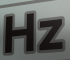
Hz